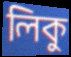
লিকু